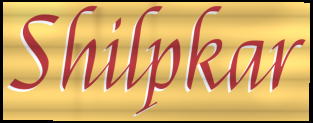
Shilpkar